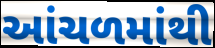
આંચળમાંથી